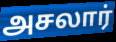
அசலார்